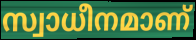
സ്വാധീനമാണ്